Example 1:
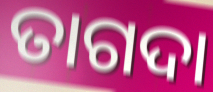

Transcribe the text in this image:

ତାଗଦା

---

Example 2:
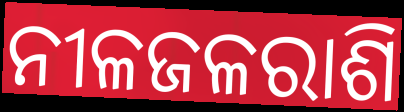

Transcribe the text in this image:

ନୀଳଜଳରାଶି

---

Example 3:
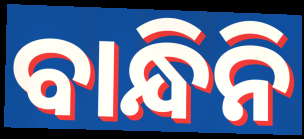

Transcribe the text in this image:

ବାନ୍ଧିନି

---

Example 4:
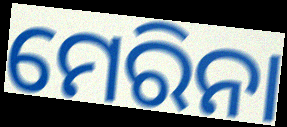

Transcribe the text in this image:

ମେରିନା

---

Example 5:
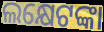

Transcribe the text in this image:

ଲକ୍ଷେଟଙ୍କା